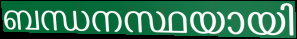
ബന്ധനസ്ഥയായി